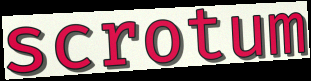
scrotum